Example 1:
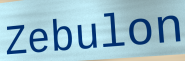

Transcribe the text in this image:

Zebulon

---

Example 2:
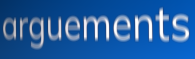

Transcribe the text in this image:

arguements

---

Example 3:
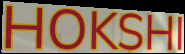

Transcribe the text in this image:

HOKSHI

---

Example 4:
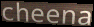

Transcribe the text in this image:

cheena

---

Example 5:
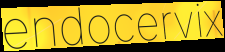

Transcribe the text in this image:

endocervix